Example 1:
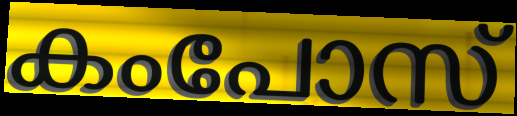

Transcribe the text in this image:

കംപോസ്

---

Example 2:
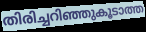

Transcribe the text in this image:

തിരിച്ചറിഞ്ഞുകൂടാത്ത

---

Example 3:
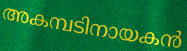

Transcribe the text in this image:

അകമ്പടിനായകൻ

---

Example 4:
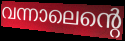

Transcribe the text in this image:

വന്നാലെന്റെ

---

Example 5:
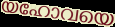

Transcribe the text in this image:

യഹോവയെ